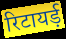
रिटायर्ड़